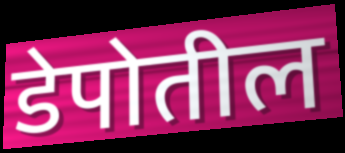
डेपोतील